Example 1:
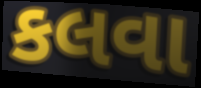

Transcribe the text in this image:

કલવા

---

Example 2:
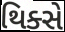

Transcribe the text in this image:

થિક્સે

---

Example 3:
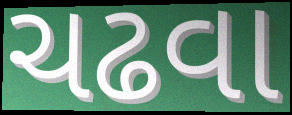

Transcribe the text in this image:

ચઢવા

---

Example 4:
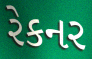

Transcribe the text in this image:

રેકનર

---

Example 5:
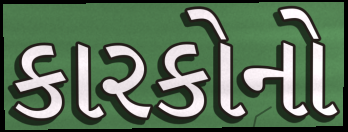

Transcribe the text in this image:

કારકોનો